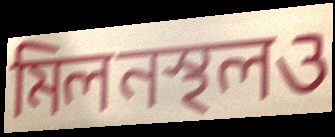
মিলনস্থলও